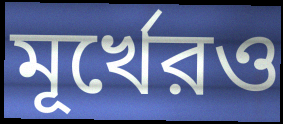
মূর্খেরও